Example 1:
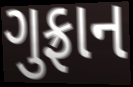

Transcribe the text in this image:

ગુફ્રાન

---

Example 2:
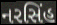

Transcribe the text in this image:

નરસિંહ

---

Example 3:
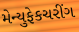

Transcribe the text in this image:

મેન્યુફેકચરીંગ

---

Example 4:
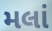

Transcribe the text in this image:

મલાં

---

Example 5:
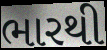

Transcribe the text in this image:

ભારથી